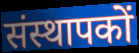
संस्थापकों